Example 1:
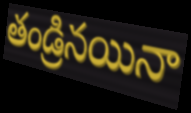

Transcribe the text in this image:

తండ్రినయినా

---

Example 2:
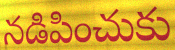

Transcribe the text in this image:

నడిపించుకు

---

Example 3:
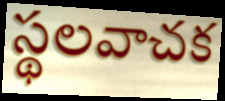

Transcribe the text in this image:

స్థలవాచక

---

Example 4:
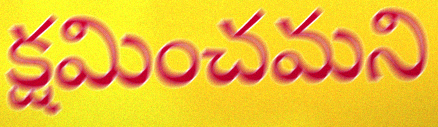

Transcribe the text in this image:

క్షమించమని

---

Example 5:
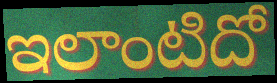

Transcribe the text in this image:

ఇలాంటిదో